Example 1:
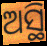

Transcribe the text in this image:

ଅସ୍ଥି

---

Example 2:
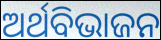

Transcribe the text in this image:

ଅର୍ଥବିଭାଜନ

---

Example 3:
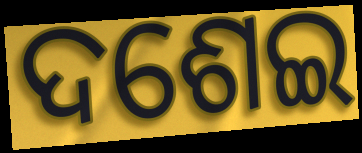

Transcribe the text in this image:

ଦଶେଇ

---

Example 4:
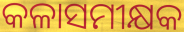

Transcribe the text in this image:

କଳାସମୀକ୍ଷକ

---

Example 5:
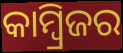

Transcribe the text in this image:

କାମ୍ବ୍ରିଜର